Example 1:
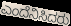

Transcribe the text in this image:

ಎಂದೆನಿಸಿದರು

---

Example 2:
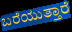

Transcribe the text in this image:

ಬರೆಯುತ್ತಾರೆ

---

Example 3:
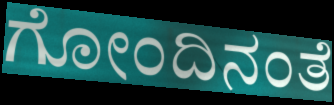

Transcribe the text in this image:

ಗೋಂದಿನಂತೆ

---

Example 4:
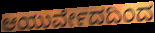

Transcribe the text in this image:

ಆಯುರ್ವೇದದಿಂದ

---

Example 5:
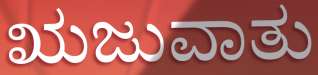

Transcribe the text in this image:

ಋಜುವಾತು